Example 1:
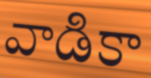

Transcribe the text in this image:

వాడికా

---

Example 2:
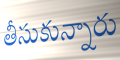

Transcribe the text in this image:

తీసుకున్నారు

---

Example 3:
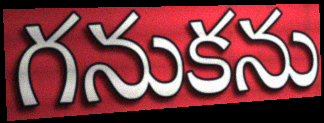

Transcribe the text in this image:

గనుకను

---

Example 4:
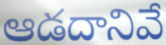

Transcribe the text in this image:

ఆడదానివే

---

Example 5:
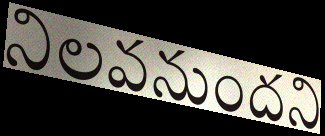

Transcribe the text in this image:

నిలవనుందని